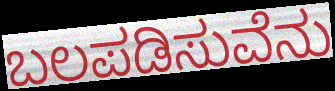
ಬಲಪಡಿಸುವೆನು